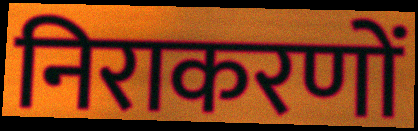
निराकरणों